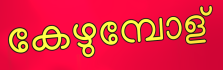
കേഴുമ്പോള്